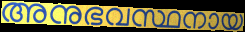
അനുഭവസ്ഥനായ